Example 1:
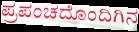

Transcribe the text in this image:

ಪ್ರಪಂಚದೊಂದಿಗಿನ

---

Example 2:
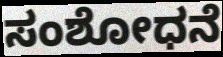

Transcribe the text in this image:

ಸಂಶೋಧನೆ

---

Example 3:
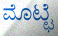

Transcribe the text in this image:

ಮೊಟ್ಟೆ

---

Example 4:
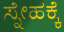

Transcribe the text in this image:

ಸ್ನೇಹಕ್ಕೆ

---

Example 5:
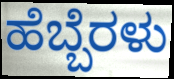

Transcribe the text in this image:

ಹೆಬ್ಬೆರಳು